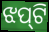
ଝପ୍‌ଟି